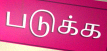
படுக்க